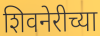
शिवनेरीच्या